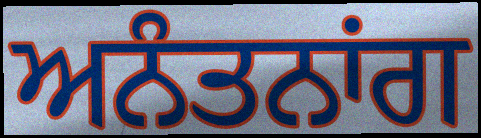
ਅਨੰਤਨਾਂਗ